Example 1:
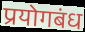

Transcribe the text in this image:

प्रयोगबंध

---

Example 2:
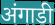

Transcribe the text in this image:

अंगाडी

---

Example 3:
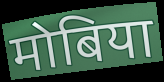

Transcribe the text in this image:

मोबिया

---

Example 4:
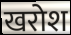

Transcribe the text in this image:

खरोश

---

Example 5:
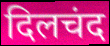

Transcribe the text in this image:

दिलचंद